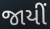
જાયીં